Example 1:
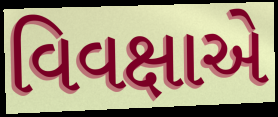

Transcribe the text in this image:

વિવક્ષાએ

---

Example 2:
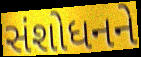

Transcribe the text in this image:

સંશોધનને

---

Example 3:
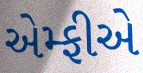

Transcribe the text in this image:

એમ્ફીએ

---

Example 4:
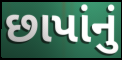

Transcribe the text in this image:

છાપાંનું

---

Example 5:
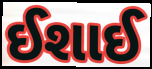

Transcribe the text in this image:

ઈશાઈ